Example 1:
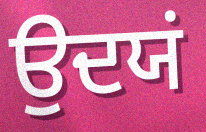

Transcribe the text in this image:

ਉਦਯਂ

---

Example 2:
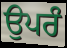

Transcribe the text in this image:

ਉਪਰੰ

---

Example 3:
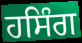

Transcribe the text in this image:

ਹਸਿੰਗ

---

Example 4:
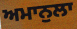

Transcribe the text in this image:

ਅਮਾਨੁਲਾ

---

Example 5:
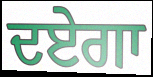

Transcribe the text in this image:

ਦਏਗਾ